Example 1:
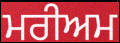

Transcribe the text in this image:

ਮਰੀਅਮ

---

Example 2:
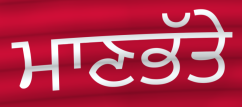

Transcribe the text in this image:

ਮਾਣਭੱਤੇ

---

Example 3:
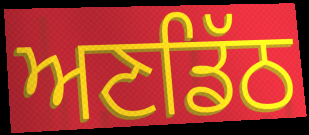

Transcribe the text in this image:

ਅਣਡਿੱਠ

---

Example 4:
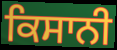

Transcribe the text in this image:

ਕਿਸਾਨੀ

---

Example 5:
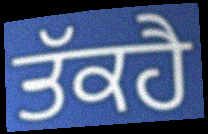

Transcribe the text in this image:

ਤੱਕਹੈ